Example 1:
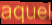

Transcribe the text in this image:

aquel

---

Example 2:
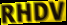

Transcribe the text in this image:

RHDV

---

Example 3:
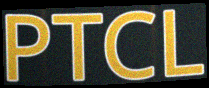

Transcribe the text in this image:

PTCL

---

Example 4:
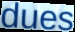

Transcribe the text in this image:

dues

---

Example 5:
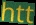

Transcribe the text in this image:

htt